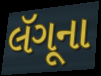
લૅગૂના